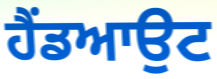
ਹੈਂਡਆਉਟ